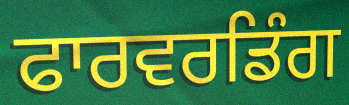
ਫਾਰਵਰਡਿੰਗ